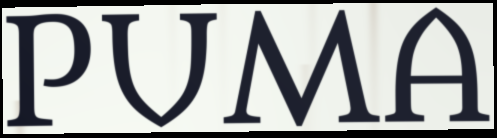
PUMA